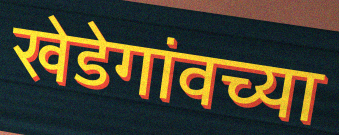
खेडेगांवच्या